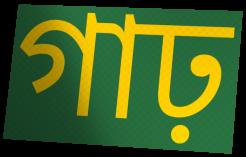
গাঢ়